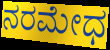
ನರಮೇಧ